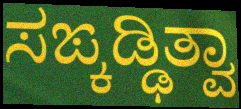
ಸಙ್ಕಡ್ಢಿತ್ವಾ